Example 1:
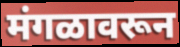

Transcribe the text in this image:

मंगळावरून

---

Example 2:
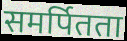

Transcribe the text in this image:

समर्पितता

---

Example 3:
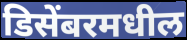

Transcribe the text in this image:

डिसेंबरमधील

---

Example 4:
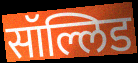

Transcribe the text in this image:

सॉल्लिड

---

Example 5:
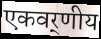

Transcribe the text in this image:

एकवर्णीय